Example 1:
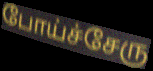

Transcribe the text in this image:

போய்ச்சேரு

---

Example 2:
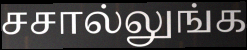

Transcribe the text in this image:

சசால்லுங்க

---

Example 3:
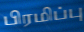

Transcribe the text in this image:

பிரமிப்பு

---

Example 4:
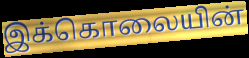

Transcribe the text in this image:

இக்கொலையின்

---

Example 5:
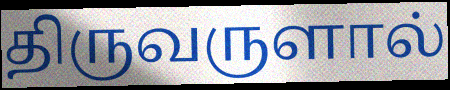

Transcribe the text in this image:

திருவருளால்